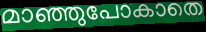
മാഞ്ഞുപോകാതെ